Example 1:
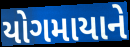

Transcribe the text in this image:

યોગમાયાને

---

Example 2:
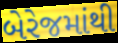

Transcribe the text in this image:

બેરેજમાંથી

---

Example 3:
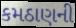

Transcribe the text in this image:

કમઠાણની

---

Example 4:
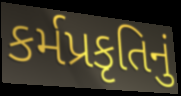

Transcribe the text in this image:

કર્મપ્રકૃતિનું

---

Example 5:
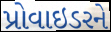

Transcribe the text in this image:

પ્રોવાઇડરને